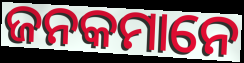
ଜନକମାନେ